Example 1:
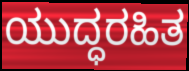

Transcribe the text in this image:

ಯುದ್ಧರಹಿತ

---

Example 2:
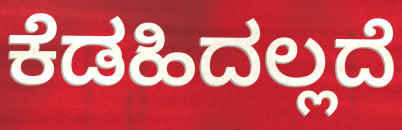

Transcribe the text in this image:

ಕೆಡಹಿದಲ್ಲದೆ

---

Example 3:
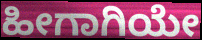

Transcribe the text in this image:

ಹೀಗಾಗಿಯೇ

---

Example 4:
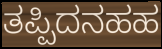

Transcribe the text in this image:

ತಪ್ಪಿದನಹಹ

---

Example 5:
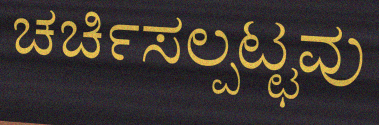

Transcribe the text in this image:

ಚರ್ಚಿಸಲ್ಪಟ್ಟವು